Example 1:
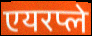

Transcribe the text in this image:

एयरप्ले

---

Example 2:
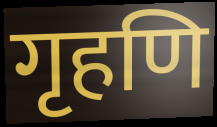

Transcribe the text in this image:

गृहणि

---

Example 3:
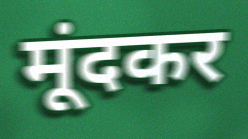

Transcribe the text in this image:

मूंदकर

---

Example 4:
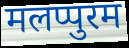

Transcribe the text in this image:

मलप्पुरम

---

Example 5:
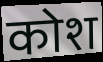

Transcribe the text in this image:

कोश